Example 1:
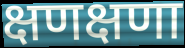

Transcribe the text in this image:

क्षणक्षणा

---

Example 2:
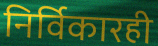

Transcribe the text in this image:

निर्विकारही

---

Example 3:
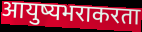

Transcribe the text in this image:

आयुष्यभराकरता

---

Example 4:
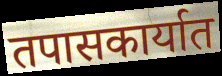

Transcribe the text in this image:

तपासकार्यात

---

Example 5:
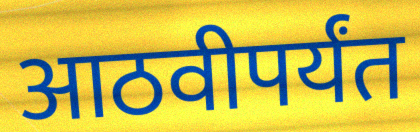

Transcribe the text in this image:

आठवीपर्यंत